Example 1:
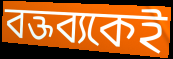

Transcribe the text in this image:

বক্তব্যকেই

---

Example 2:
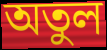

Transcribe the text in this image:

অতুল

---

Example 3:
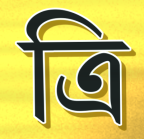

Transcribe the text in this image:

ত্রি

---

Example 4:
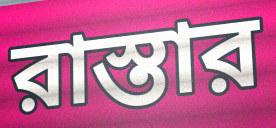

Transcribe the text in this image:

রাস্তার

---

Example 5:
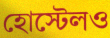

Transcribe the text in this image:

হোস্টেলও